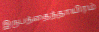
இருபத்தைந்தாயிரம்